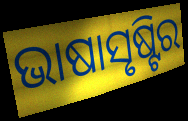
ଭାଷାସୃଷ୍ଟିର